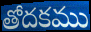
తోదకము